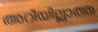
അറിയില്ലാത്ത